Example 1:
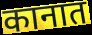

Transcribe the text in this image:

कानात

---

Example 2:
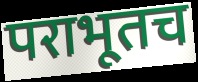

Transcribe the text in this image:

पराभूतच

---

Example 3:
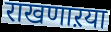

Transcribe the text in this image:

राखणाऱया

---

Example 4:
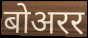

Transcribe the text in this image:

बोअरर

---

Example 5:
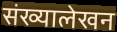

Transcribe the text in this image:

संख्यालेखन